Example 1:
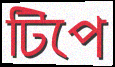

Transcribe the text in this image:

টিপে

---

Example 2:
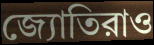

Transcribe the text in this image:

জ্যোতিরাও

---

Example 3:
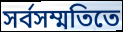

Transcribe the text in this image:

সর্বসম্মতিতে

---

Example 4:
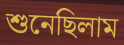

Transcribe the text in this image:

শুনেছিলাম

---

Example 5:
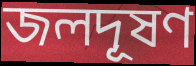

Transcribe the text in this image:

জলদূষণ